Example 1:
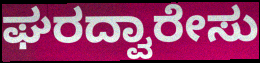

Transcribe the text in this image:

ಘರದ್ವಾರೇಸು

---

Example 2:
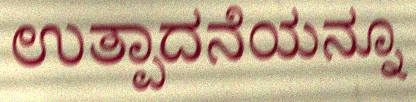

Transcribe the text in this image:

ಉತ್ಪಾದನೆಯನ್ನೂ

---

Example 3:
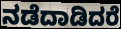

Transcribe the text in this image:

ನಡೆದಾಡಿದರೆ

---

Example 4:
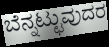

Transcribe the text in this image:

ಬೆನ್ನಟ್ಟುವುದರ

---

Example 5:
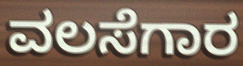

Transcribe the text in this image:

ವಲಸೆಗಾರ